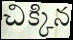
చిక్కిన